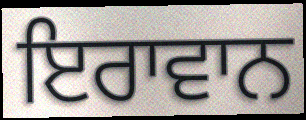
ਇਰਾਵਾਨ